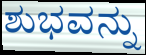
ಶುಭವನ್ನು